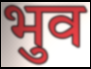
भुव